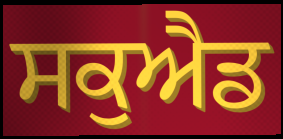
ਸਕੁਐਡ